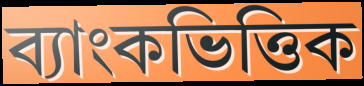
ব্যাংকভিত্তিক